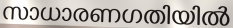
സാധാരണഗതിയിൽ